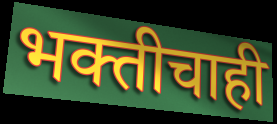
भक्तीचाही